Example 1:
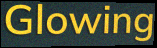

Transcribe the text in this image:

Glowing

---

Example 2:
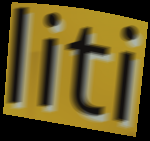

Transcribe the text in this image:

liti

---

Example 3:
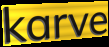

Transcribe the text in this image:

karve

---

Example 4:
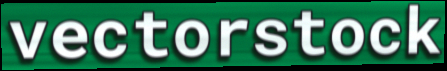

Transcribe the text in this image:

vectorstock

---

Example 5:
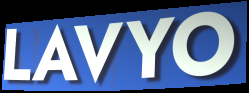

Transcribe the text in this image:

LAVYO